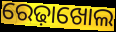
ରେଢ଼ାଖୋଲ